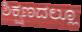
ಶಿಕ್ಷಣದಲ್ಲೂ